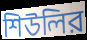
শিউলির